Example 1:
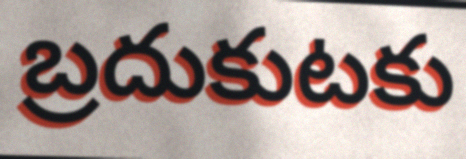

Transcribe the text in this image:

బ్రదుకుటకు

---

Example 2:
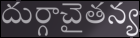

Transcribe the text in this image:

దుర్గాచైతన్య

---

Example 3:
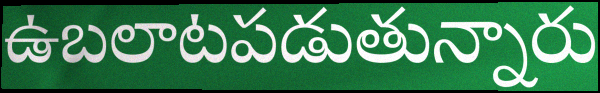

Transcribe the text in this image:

ఉబలాటపడుతున్నారు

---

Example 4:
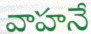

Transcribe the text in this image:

వాహనే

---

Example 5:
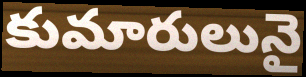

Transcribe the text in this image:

కుమారులునై